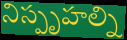
నిస్పృహల్ని